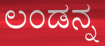
ಲಂಡನ್ನ